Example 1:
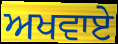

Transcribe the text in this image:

ਅਖਵਾਏ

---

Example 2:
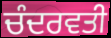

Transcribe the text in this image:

ਚੰਦਰਵਤੀ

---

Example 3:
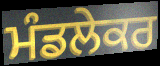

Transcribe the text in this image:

ਮੰਡਲੇਕਰ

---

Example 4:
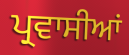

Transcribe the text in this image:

ਪ੍ਰਵਾਸੀਆਂ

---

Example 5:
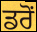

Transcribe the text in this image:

ਡਰੋਂ